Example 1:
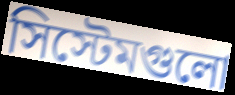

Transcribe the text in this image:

সিস্টেমগুলো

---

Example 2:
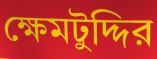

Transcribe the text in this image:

ক্ষেমটুদ্দির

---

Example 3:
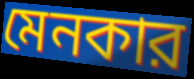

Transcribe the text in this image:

মেনকার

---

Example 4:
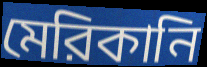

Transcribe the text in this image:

মেরিকানি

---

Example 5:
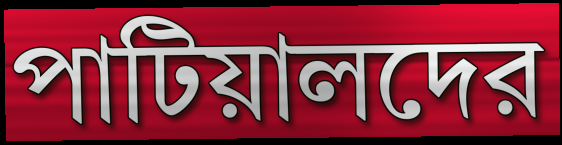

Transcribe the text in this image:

পাটিয়ালদের